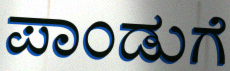
ಪಾಂಡುಗೆ